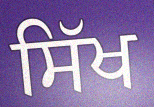
ਸਿੱਖ